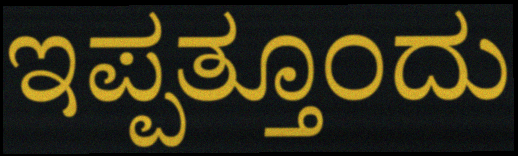
ಇಪ್ಪತ್ತೂಂದು